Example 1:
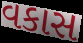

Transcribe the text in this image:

વકાસ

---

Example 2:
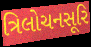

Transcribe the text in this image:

ત્રિલોચનસૂરિ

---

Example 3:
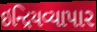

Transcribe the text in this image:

ઇન્દ્રિયવ્યાપાર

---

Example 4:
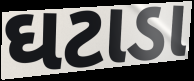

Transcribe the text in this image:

ઘટાડા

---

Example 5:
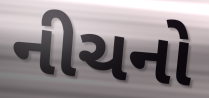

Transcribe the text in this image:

નીચનો